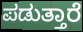
ಪಡುತ್ತಾರೆ